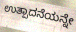
ಉತ್ಪಾದನೆಯನ್ನೇ